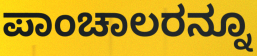
ಪಾಂಚಾಲರನ್ನೂ